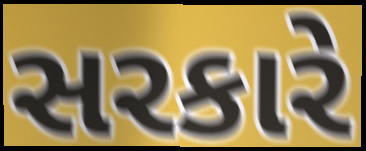
સરકારે